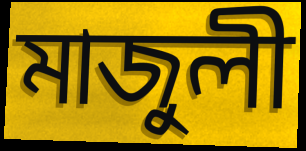
মাজুলী